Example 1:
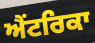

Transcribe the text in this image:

ਐਂਟਰਿਕਾ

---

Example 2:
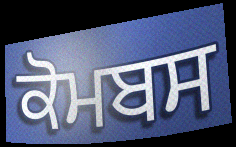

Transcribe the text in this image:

ਕੋਮਬਸ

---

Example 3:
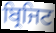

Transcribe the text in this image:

ਬ੍ਰਿਜਿਟ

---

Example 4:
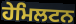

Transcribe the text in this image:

ਹੇਮਿਲਟਨ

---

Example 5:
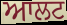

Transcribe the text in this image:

ਆਲਟ